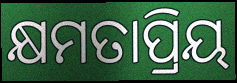
କ୍ଷମତାପ୍ରିୟ